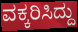
ವಕ್ಕರಿಸಿದ್ದು